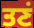
ਤਣਂ